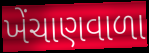
ખેંચાણવાળા